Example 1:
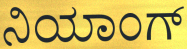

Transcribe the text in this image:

ನಿಯಾಂಗ್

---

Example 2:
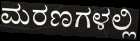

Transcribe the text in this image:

ಮರಣಗಳಲ್ಲಿ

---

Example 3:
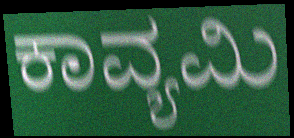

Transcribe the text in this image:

ಕಾವ್ಯಮಿ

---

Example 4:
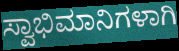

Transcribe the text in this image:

ಸ್ವಾಭಿಮಾನಿಗಳಾಗಿ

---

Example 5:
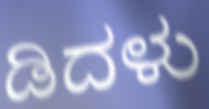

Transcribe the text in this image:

ಡಿದಳು